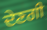
ਦੇਣਗੀ